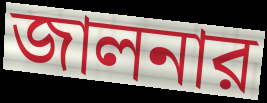
জালনার